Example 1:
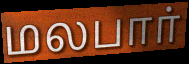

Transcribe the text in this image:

மலபார்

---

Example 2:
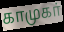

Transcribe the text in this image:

காமுகர்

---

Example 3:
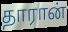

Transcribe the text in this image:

தாரான்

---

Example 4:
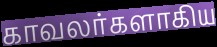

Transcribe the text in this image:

காவலர்களாகிய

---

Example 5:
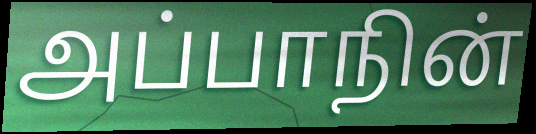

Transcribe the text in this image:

அப்பாநின்